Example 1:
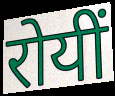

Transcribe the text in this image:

रोयीं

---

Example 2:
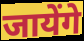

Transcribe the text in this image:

जायेंगे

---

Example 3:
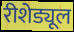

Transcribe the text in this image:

रीशेड्यूल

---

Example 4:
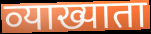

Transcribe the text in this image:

व्‍याख्‍याता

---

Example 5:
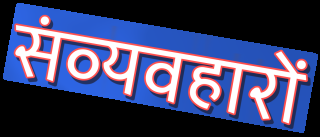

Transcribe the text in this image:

संव्‍यवहारों